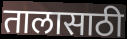
तालासाठी